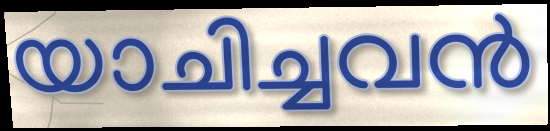
യാചിച്ചവൻ